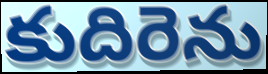
కుదిరెను